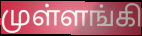
முள்ளங்கி